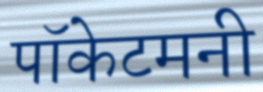
पॉकेटमनी